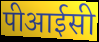
पीआईसी